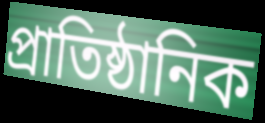
প্রাতিষ্ঠানিক